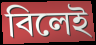
বিলেই